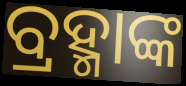
ବ୍ରହ୍ମାଙ୍କ